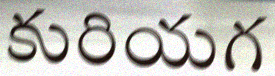
కురియగ